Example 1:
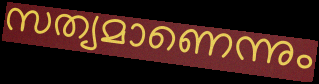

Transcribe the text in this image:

സത്യമാണെന്നും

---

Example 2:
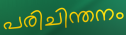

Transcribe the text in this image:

പരിചിന്തനം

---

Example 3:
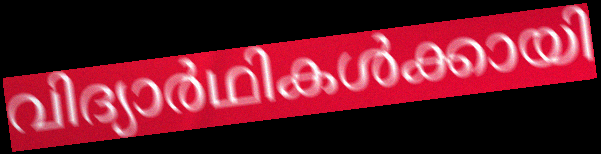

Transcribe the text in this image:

വിദ്യാർഥികൾക്കായി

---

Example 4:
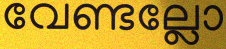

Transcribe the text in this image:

വേണ്ടല്ലോ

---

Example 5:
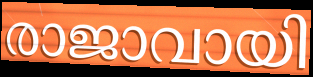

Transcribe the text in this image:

രാജാവായി